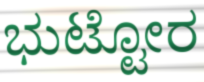
ಭುಟ್ಟೋರ